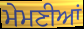
ਮੇਮਣੀਆਂ